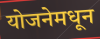
योजनेमधून